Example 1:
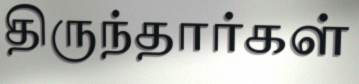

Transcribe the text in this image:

திருந்தார்கள்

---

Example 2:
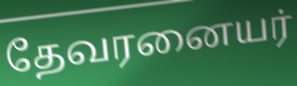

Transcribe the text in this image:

தேவரனையர்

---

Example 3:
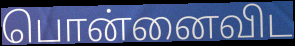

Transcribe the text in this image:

பொன்னைவிட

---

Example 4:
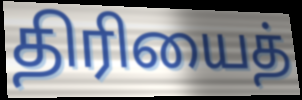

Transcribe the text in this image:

திரியைத்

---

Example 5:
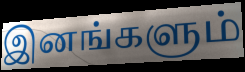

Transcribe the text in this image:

இனங்களும்